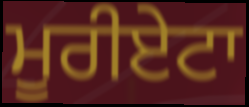
ਮੂਰੀਏਟਾ